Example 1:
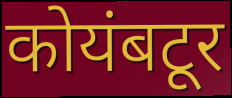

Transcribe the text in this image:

कोयंबटूर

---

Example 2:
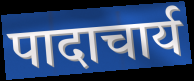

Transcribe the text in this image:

पादाचार्य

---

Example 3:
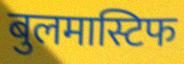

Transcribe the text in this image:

बुलमास्टिफ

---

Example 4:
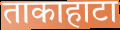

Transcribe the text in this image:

ताकाहाटा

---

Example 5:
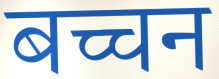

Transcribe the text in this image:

बच्‍चन